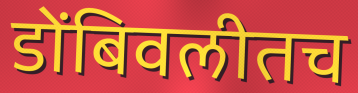
डोंबिवलीतच